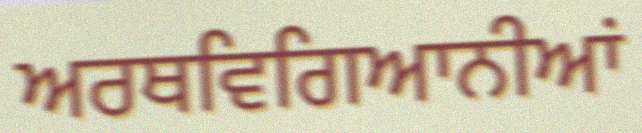
ਅਰਥਵਿਗਿਆਨੀਆਂ